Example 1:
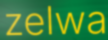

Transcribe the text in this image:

zelwa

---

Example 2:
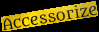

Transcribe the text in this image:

Accessorize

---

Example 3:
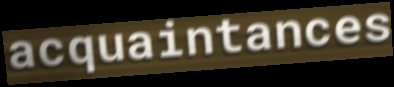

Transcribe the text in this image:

acquaintances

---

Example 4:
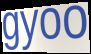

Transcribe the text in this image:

gyoo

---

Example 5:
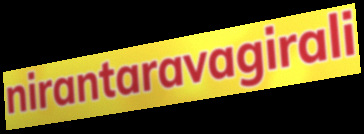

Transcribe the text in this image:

nirantaravagirali